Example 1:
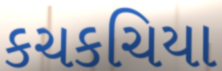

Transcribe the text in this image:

કચકચિયા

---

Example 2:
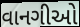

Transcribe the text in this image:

વાનગીઓ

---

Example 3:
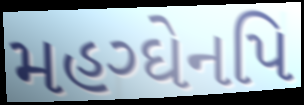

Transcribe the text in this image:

મહગ્ઘેનપિ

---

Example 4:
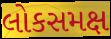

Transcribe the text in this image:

લોકસમક્ષ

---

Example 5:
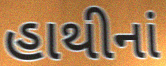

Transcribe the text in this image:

હાથીનાં